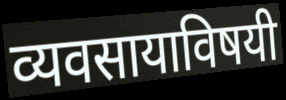
व्यवसायाविषयी